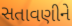
સતાવણીને